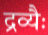
द्रव्यैः